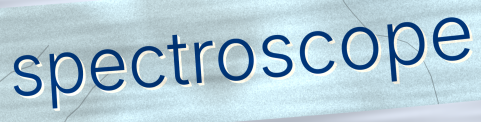
spectroscope